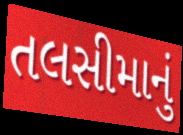
તલસીમાનું